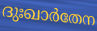
ദുഃഖാർതേന